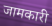
जामकारी